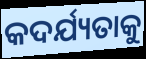
କଦର୍ଯ୍ୟତାକୁ